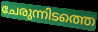
ചേരുന്നിടത്തെ